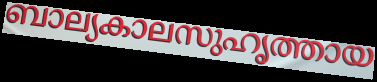
ബാല്യകാലസുഹൃത്തായ